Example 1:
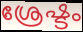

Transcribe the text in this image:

ശ്രേഷ്ടം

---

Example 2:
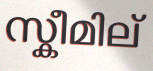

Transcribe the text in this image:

സ്കീമില്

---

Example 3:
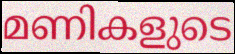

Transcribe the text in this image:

മണികളുടെ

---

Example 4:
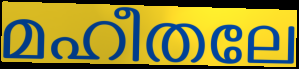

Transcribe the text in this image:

മഹീതലേ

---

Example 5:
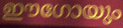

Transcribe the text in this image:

ഈഗോയും